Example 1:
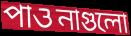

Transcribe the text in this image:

পাওনাগুলো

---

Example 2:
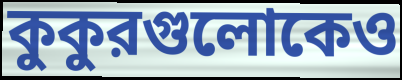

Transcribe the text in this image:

কুকুরগুলোকেও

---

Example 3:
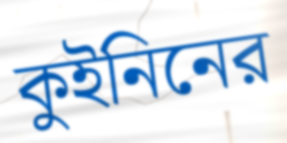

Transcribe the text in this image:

কুইনিনের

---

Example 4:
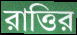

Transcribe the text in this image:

রাত্তির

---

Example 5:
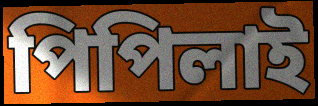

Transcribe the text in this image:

পিপিলাই